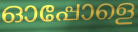
ഓപ്പോളെ